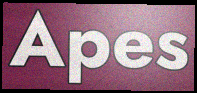
Apes